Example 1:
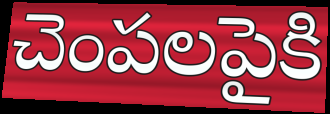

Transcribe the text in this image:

చెంపలపైకి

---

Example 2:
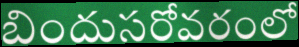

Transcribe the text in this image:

బిందుసరోవరంలో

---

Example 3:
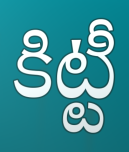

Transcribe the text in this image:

కిట్టీ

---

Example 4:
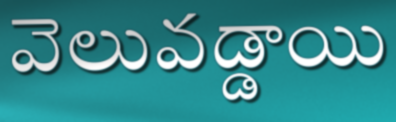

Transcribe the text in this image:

వెలువడ్డాయి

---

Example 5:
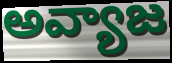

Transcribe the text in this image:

అవ్యాజ